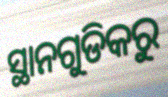
ସ୍ଥାନଗୁଡିକରୁ